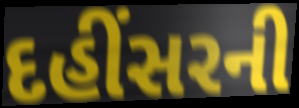
દહીંસરની